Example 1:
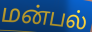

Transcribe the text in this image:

மன்பல்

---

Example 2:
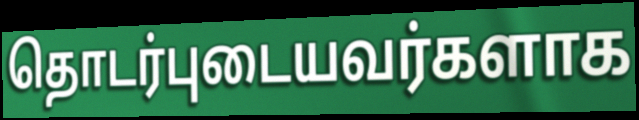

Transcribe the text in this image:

தொடர்புடையவர்களாக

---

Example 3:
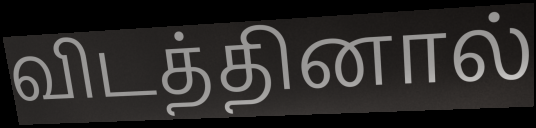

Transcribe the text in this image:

விடத்தினால்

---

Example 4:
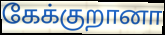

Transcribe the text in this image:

கேக்குறானா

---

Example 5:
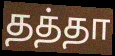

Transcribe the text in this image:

தத்தா